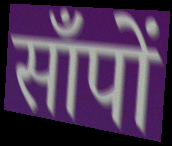
साँपों